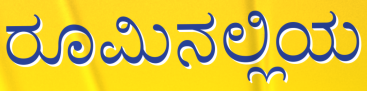
ರೂಮಿನಲ್ಲಿಯ